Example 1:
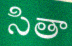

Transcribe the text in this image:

సితా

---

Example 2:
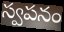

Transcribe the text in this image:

స్వపనం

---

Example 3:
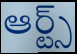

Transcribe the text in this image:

ఆర్ట్స్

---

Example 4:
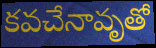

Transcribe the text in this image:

కవచేనావృతో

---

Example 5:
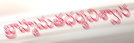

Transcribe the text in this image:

బ్రాహ్మమతధర్మవిశ్వాస